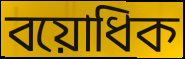
বয়োধিক